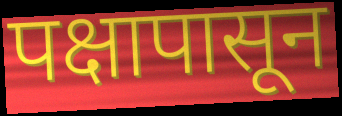
पक्षापासून